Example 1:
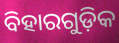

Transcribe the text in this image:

ବିହାରଗୁଡ଼ିକ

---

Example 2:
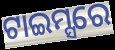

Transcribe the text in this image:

ଟାଇମ୍ସରେ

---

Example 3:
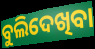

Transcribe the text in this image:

ବୁଲିଦେଖିବା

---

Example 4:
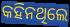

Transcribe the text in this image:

କହିନଥିଲେ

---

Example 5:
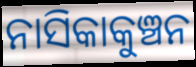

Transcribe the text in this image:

ନାସିକାକୁଞ୍ଚନ